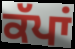
ਕੱਪਾਂ